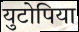
युटोपिया